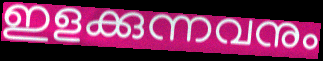
ഇളക്കുന്നവനും